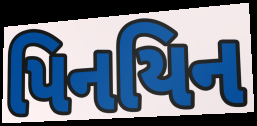
પિનયિન